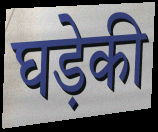
घड़ेकी